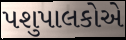
પશુપાલકોએ